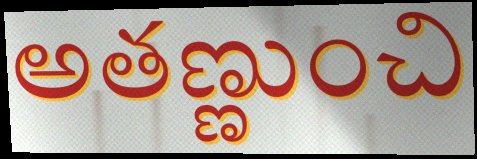
అతణ్ణుంచి